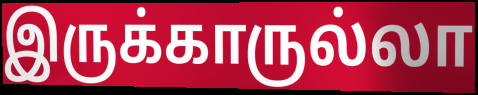
இருக்காருல்லா